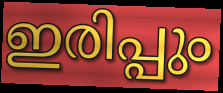
ഇരിപ്പും